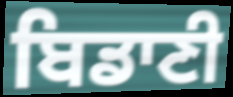
ਬਿਡਾਣੀ